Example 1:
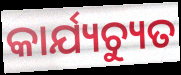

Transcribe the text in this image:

କାର୍ଯ୍ୟଚ୍ୟୁତ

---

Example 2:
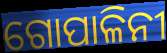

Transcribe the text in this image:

ଗୋପାଳିନୀ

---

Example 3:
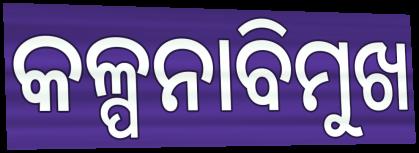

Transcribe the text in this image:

କଳ୍ପନାବିମୁଖ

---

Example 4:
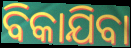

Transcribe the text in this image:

ବିକାଯିବା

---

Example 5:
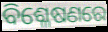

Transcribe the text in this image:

ବିଶ୍ଳେଷଣରେ